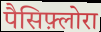
पैसिफ़्लोरा